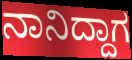
ನಾನಿದ್ದಾಗ